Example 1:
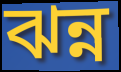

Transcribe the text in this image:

ঝন্ন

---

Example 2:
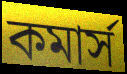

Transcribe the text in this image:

কমার্স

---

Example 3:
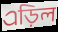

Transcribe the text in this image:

এড়িল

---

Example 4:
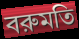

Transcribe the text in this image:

বরুমতি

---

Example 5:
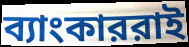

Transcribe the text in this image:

ব্যাংকাররাই